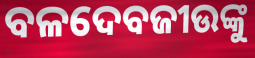
ବଳଦେବଜୀଉଙ୍କୁ